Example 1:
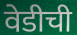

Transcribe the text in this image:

वेडीची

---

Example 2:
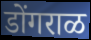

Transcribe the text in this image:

डोंगराळ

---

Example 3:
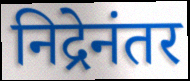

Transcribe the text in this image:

निद्रेनंतर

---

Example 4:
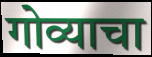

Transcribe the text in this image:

गोव्याचा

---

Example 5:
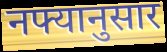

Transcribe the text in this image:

नफ्यानुसार